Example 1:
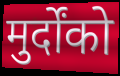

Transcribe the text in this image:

मुर्दोंको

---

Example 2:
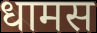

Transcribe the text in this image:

धामस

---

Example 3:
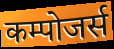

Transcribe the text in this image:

कम्पोजर्स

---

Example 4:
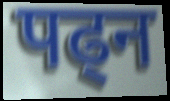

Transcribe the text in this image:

पढ्न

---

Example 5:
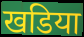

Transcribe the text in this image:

खडिया